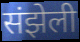
संझेली